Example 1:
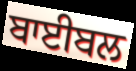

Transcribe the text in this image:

ਬਾਈਬਲ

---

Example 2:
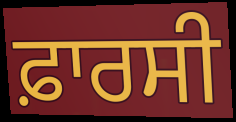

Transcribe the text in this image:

ਫ਼ਾਰਸੀ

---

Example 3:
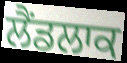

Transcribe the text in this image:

ਲੈਂਡਲਾਕ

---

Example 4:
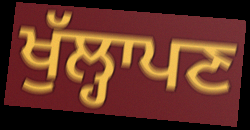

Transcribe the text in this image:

ਖੁੱਲ੍ਹਾਪਣ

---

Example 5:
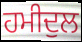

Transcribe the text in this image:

ਹਮੀਦੁਲ